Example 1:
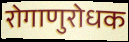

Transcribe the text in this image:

रोगाणुरोधक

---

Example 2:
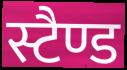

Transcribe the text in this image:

स्टैण्ड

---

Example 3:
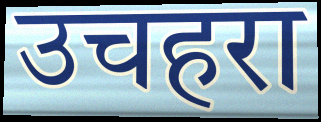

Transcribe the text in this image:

उचहरा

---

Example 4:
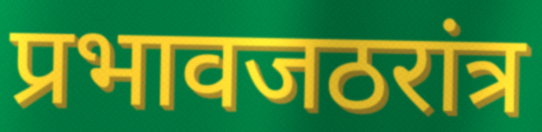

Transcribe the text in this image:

प्रभावजठरांत्र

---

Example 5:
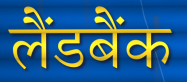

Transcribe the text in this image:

लैंडबैंक